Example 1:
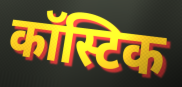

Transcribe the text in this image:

कॉस्टिक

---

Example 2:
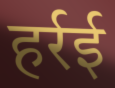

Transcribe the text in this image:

हर्रई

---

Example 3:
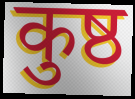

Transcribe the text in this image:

कुष्ठ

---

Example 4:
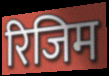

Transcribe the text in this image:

रिजिम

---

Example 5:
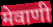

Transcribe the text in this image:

मेवाणी